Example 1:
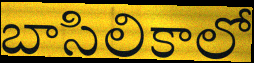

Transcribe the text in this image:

బాసిలికాలో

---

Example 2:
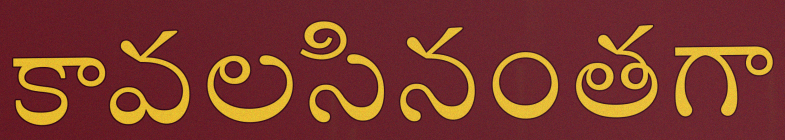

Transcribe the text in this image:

కావలసినంతగా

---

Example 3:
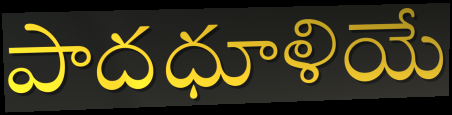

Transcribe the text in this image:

పాదధూళియే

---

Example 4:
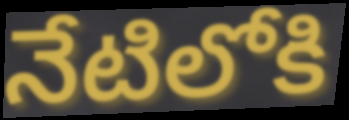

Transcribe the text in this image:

నేటిలోకి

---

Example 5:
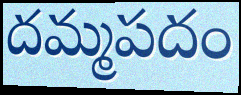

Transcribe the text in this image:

దమ్మపదం